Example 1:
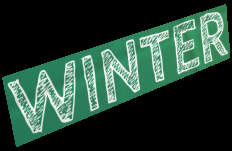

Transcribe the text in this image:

WINTER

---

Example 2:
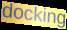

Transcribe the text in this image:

docking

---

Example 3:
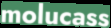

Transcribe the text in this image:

molucass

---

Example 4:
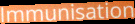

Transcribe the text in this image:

Immunisation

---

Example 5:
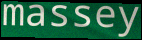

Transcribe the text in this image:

massey